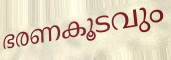
ഭരണകൂടവും